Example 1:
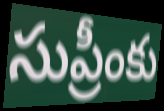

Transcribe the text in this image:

సుప్రీంకు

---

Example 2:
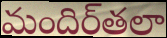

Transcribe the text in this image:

మందిర్‌తలా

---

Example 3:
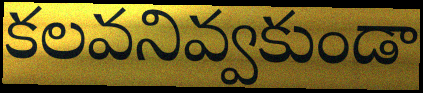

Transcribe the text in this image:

కలవనివ్వకుండా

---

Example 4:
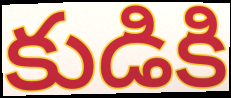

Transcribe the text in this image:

కుడికి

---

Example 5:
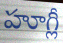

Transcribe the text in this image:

హూగ్లీ